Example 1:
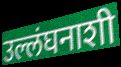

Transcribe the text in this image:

उल्लंघनाशी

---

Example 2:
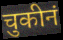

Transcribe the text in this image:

चुकीनं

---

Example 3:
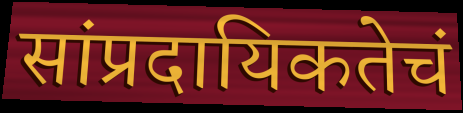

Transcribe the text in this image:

सांप्रदायिकतेचं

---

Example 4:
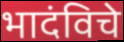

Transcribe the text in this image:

भादंविचे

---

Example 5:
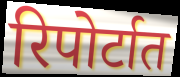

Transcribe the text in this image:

रिपोर्टात